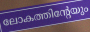
ലോകത്തിന്റേയും